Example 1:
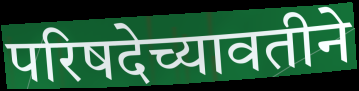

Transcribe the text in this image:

परिषदेच्यावतीने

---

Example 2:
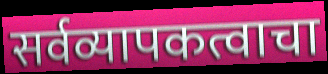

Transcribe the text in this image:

सर्वव्यापकत्वाचा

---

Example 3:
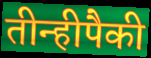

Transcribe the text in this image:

तीन्हीपैकी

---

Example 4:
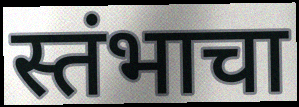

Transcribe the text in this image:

स्तंभाचा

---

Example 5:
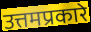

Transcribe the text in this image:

उत्तमप्रकारे